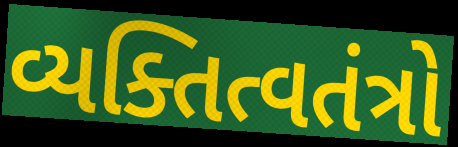
વ્યક્તિત્વતંત્રો